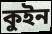
কুইন